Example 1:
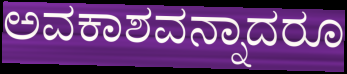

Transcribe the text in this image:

ಅವಕಾಶವನ್ನಾದರೂ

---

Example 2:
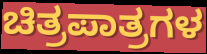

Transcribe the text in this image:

ಚಿತ್ರಪಾತ್ರಗಳ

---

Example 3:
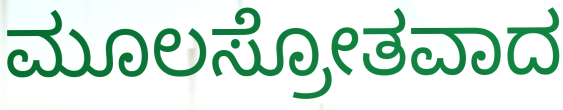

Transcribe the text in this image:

ಮೂಲಸ್ರೋತವಾದ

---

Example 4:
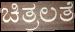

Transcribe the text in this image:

ಚಿತ್ರಲತೆ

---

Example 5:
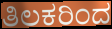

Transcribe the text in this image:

ತಿಲಕರಿಂದ